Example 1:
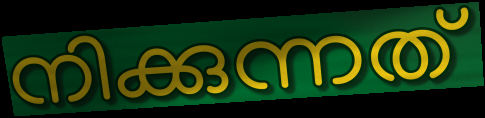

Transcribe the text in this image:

നിക്കുന്നത്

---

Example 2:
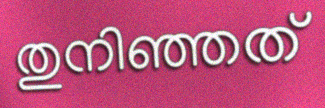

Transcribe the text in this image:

തുനിഞ്ഞത്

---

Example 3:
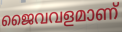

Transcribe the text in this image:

ജൈവവളമാണ്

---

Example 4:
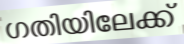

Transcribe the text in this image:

ഗതിയിലേക്ക്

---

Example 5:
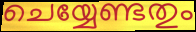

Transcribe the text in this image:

ചെയ്യേണ്ടതും